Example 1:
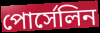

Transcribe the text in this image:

পোর্সেলিন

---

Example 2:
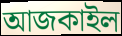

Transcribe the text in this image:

আজকাইল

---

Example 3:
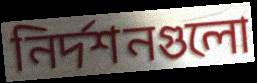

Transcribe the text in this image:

নির্দশনগুলো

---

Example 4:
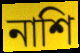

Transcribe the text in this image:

নাশি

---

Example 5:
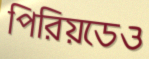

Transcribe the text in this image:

পিরিয়ডেও